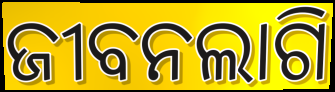
ଜୀବନଲାଗି